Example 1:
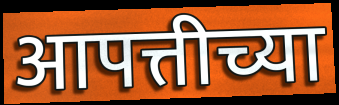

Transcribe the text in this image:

आपत्तीच्या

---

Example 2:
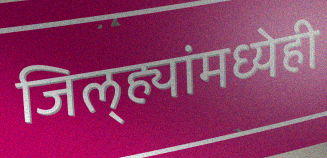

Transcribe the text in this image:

जिल्ह्यांमध्येही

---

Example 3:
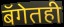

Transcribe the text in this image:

बॅगेतही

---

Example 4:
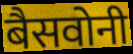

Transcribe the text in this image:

बैसवोनी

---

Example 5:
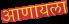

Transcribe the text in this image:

आणायला